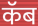
कॅब